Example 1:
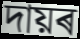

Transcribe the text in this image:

দায়ৰ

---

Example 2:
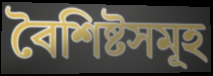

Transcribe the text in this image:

বৈশিষ্টসমূহ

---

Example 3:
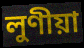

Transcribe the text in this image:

লুণীয়া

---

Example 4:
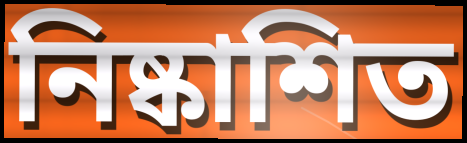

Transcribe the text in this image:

নিষ্কাশিত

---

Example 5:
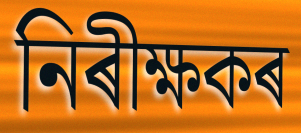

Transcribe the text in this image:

নিৰীক্ষকৰ